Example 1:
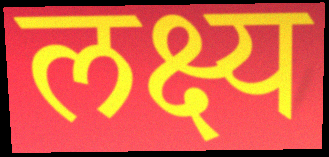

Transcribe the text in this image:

लक्ष्य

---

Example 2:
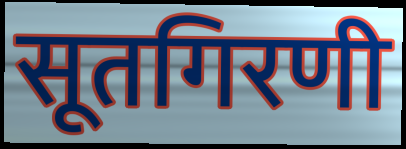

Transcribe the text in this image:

सूतगिरणी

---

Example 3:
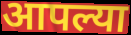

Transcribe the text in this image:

आपल्या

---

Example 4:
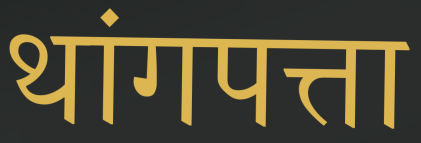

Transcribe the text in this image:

थांगपत्ता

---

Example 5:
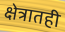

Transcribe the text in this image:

क्षेत्रातही